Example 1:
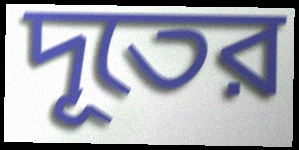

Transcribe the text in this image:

দূতের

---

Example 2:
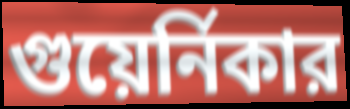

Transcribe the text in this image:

গুয়ের্নিকার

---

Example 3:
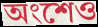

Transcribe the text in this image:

অংশেও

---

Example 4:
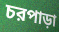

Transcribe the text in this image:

চরপাড়া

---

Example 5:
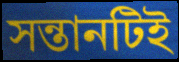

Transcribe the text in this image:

সন্তানটিই